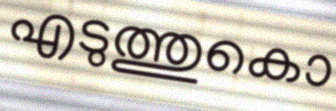
എടുത്തുകൊ